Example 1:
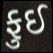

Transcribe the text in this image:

ફુઈ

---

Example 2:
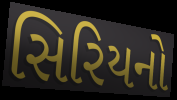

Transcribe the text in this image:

સિરિયનો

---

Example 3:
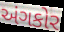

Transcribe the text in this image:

અંગકોર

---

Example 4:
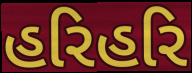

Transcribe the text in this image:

હરિહરિ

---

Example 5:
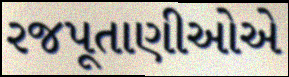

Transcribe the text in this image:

રજપૂતાણીઓએ